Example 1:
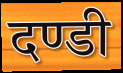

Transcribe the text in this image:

दण्डी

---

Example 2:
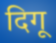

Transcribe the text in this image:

दिगू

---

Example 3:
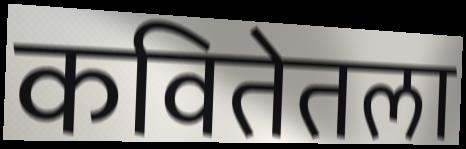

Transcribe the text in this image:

कवितेतला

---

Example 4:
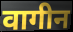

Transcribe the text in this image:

वागीन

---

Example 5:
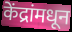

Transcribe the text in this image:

केंद्रांमधून